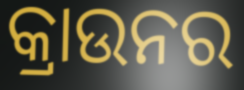
କ୍ରାଉନର